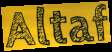
Altaf